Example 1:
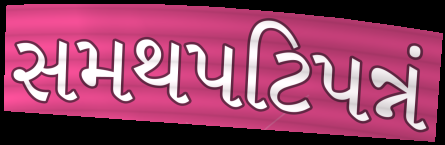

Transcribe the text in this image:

સમથપટિપન્નં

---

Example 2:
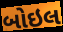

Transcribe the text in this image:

બોઇલ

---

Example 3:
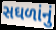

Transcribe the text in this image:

સઘળાંનું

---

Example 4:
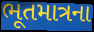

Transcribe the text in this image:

ભૂતમાત્રના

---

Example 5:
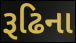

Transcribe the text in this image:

રૂઢિના